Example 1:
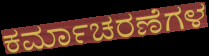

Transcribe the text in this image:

ಕರ್ಮಾಚರಣೆಗಳ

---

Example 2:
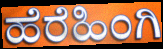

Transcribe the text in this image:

ಹೆರೆಹಿಂಗಿ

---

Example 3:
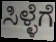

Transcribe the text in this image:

ಸಿಳ್ಳೆಗೆ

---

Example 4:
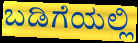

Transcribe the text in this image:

ಬಡಿಗೆಯಲ್ಲಿ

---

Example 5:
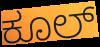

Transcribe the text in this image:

ಕೂಲ್